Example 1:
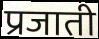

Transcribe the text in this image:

प्रजाती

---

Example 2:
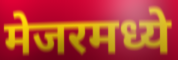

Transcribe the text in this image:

मेजरमध्ये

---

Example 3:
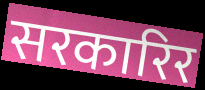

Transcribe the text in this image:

सरकारिर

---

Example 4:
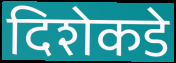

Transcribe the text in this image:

दिशेकडे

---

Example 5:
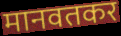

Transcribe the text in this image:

मानवतकर